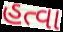
હત્વા